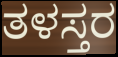
ತಳಸ್ತರ